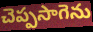
చెప్పసాగెను